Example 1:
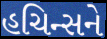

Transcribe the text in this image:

હચિન્સને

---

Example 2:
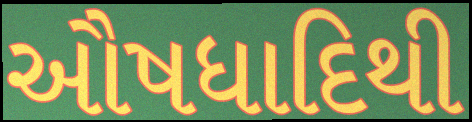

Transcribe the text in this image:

ઔષધાદિથી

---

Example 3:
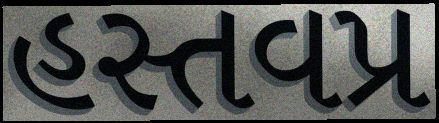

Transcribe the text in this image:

હસ્તવપ્ર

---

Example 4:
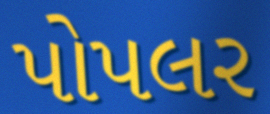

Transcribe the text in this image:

પોપલર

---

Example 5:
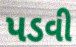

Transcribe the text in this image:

પડવી